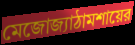
মেজোজ্যাঠামশায়ের